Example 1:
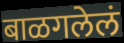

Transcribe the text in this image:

बाळगलेलं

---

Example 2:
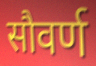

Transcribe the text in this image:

सौवर्ण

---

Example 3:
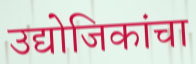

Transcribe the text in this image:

उद्योजिकांचा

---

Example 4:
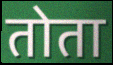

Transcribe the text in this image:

तोता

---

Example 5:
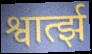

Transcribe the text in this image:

श्वार्त्झ